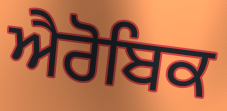
ਐਰੋਬਿਕ